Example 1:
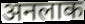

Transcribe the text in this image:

अनलाक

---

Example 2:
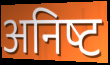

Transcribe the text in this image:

अनिष्‍ट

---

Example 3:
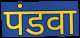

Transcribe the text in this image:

पंडवा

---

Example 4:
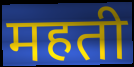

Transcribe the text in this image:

महती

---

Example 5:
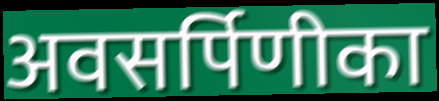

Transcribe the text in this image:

अवसर्पिणीका